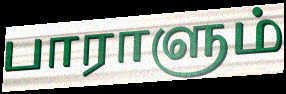
பாராளும்